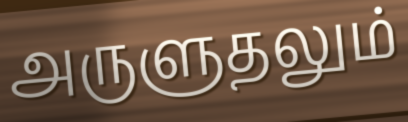
அருளுதலும்